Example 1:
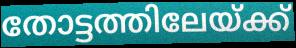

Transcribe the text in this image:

തോട്ടത്തിലേയ്ക്ക്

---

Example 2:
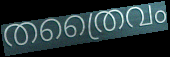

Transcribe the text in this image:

തത്രൈവം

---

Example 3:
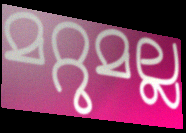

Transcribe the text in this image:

മറ്റുമല്ല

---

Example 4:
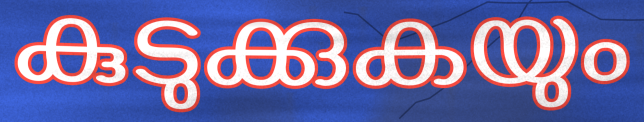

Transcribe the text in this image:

കുടുക്കുകയും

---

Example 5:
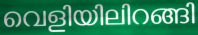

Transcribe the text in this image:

വെളിയിലിറങ്ങി